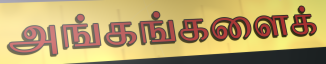
அங்கங்களைக்